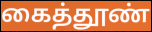
கைத்தூண்